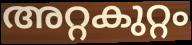
അറ്റകുറ്റം